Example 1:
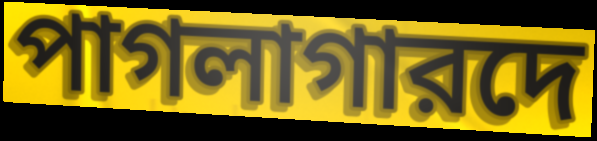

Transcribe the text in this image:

পাগলাগারদে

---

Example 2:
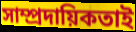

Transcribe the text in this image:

সাম্প্রদায়িকতাই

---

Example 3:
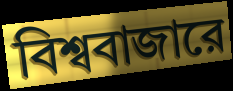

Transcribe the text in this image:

বিশ্ববাজারে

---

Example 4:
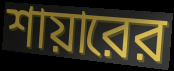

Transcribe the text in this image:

শায়ারের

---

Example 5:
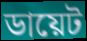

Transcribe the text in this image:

ডায়েট